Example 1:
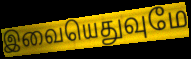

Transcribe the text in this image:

இவையெதுவுமே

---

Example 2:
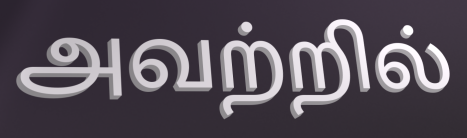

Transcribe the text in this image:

அவற்றில்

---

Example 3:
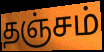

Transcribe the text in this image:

தஞ்சம்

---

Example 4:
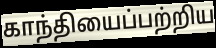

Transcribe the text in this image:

காந்தியைப்பற்றிய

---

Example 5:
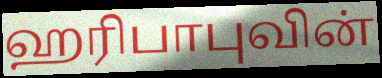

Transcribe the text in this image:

ஹரிபாபுவின்